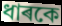
ধাৰকে